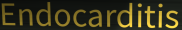
Endocarditis